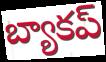
బ్యాకప్